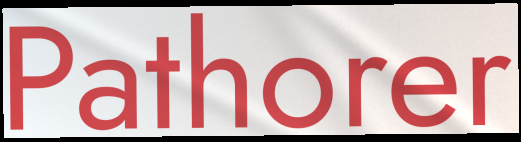
Pathorer